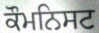
ਕੌਮਨਿਸਟ